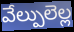
వేల్పులెల్ల